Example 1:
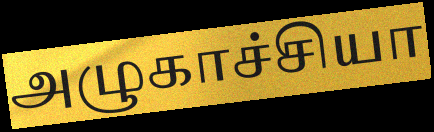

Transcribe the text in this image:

அழுகாச்சியா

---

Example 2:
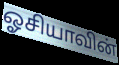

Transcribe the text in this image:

ஓசியாவின்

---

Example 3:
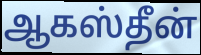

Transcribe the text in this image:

ஆகஸ்தீன்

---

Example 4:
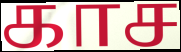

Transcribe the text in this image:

காச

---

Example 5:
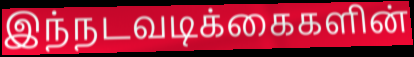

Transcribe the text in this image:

இந்நடவடிக்கைகளின்